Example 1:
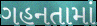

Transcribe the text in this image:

ગહનતામાં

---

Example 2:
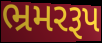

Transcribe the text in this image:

ભ્રમરરૂપ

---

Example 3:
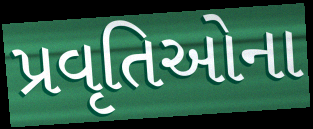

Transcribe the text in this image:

પ્રવૃતિઓના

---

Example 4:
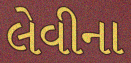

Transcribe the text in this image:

લેવીના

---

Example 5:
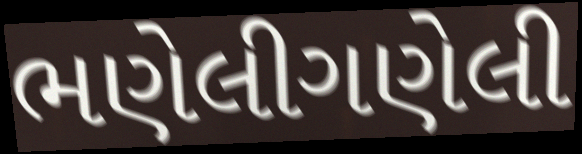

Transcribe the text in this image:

ભણેલીગણેલી